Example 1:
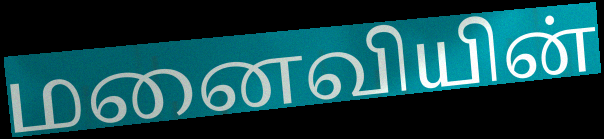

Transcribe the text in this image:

மனைவியின்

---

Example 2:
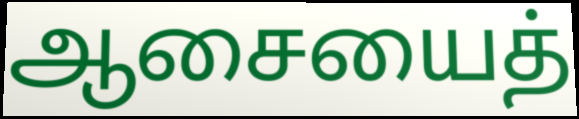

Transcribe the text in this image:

ஆசையைத்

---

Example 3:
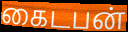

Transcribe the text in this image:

கைடபன்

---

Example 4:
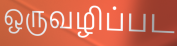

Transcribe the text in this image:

ஒருவழிப்பட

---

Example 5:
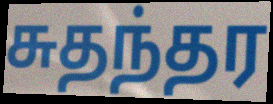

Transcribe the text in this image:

சுதந்தர